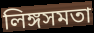
লিঙ্গসমতা